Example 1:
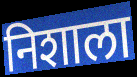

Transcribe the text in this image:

निशाला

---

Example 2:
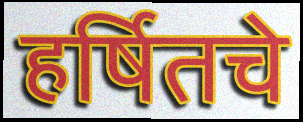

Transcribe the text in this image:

हर्षितचे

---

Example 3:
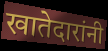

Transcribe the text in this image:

खातेदारांनी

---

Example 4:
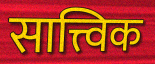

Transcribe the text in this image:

सात्त्विक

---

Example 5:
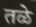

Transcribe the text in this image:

तळे